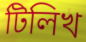
টিলিখ